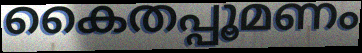
കൈതപ്പൂമണം